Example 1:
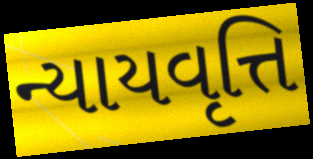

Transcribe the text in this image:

ન્યાયવૃત્તિ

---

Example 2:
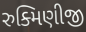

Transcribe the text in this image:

રુક્મિણીજી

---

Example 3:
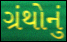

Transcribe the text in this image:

ગ્રંથોનું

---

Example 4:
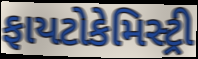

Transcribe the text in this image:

ફાયટોકેમિસ્ટ્રી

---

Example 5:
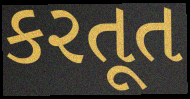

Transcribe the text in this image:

કરતૂત